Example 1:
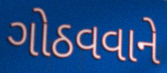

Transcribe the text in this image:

ગોઠવવાને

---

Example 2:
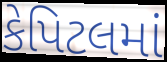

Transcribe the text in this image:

કેપિટલમાં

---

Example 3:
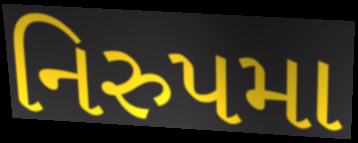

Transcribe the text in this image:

નિરુપમા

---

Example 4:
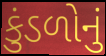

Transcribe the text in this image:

કુંડળોનું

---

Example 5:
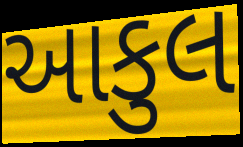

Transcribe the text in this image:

આકુલ